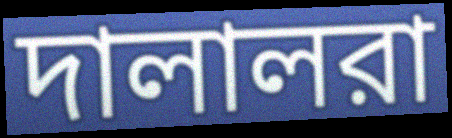
দালালরা